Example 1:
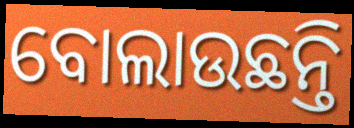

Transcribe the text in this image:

ବୋଲାଉଛନ୍ତି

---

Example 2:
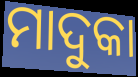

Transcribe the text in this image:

ମାଦୁକା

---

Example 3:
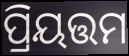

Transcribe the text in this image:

ପ୍ରିୟତ୍ତମ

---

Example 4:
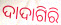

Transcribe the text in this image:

ଦାଦାଗିରି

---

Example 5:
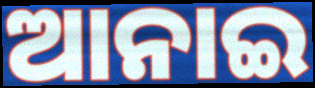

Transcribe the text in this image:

ଆନାଇ